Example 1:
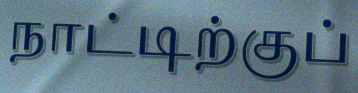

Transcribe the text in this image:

நாட்டிற்குப்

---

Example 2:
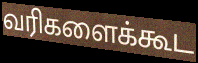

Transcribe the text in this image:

வரிகளைக்கூட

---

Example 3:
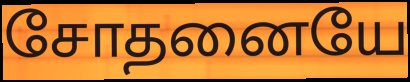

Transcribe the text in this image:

சோதனையே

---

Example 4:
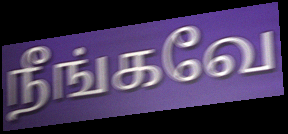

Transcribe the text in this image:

நீங்கவே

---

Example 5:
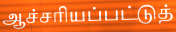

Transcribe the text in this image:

ஆச்சரியப்பட்டுத்